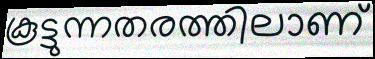
കൂട്ടുന്നതരത്തിലാണ്